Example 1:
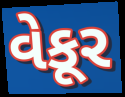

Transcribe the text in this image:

વેકૂર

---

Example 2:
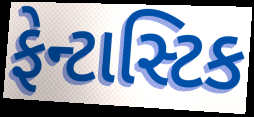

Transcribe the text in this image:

ફેન્ટાસ્ટિક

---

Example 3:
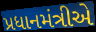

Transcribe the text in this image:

પ્રધાનમંત્રીએ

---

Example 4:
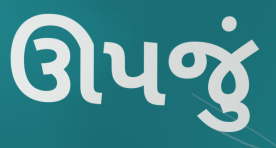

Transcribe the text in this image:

ઊપજું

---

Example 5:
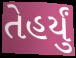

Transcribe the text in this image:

તેહર્યું